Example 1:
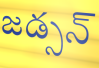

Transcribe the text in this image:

జడ్సన్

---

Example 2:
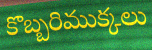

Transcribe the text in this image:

కొబ్బరిముక్కలు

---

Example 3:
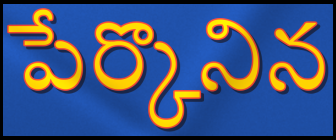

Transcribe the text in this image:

పేర్కొనిన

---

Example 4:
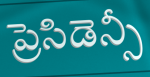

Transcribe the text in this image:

ప్రెసిడెన్సీ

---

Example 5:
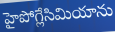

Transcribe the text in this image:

హైపోగ్లేసిమియాను